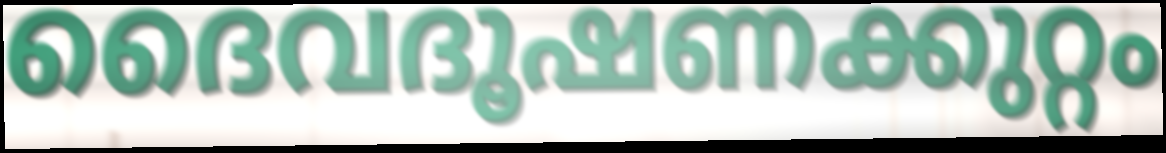
ദൈവദൂഷണക്കുറ്റം